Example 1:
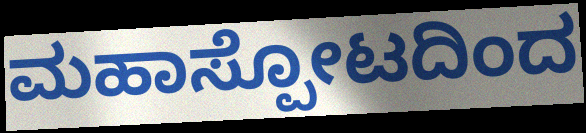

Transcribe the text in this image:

ಮಹಾಸ್ಪೋಟದಿಂದ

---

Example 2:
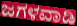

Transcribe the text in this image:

ಜಗಳವಾಡಿ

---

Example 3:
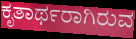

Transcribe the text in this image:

ಕೃತಾರ್ಥರಾಗಿರುವ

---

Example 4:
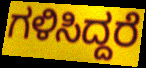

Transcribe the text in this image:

ಗಳಿಸಿದ್ದರೆ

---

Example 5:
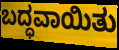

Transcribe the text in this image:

ಬದ್ಧವಾಯಿತು